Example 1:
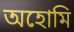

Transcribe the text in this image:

অহোমি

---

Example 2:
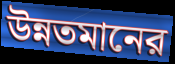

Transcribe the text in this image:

উন্নতমানের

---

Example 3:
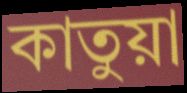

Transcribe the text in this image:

কাতুয়া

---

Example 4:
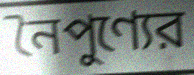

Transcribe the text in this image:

নৈপুণ্যের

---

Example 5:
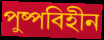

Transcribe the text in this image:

পুষ্পবিহীন